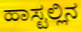
ಹಾಸ್ಟಲ್ಲಿನ